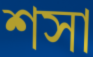
শসা